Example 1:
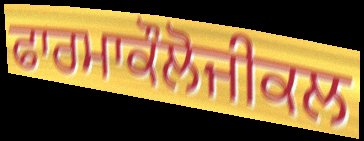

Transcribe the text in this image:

ਫਾਰਮਾਕੌਲੋਜੀਕਲ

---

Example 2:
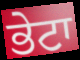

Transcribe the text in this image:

ਭੇਟਾ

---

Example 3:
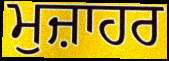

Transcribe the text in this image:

ਮੁਜ਼ਾਹਰ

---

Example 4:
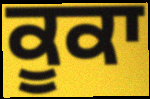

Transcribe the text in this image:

ਕੂਕਾ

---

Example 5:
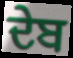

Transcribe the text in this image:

ਦੇਬ